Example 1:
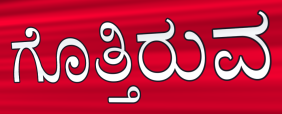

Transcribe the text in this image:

ಗೊತ್ತಿರುವ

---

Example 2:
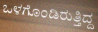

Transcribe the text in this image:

ಒಳಗೊಂಡಿರುತ್ತಿದ್ದ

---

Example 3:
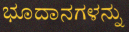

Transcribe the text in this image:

ಭೂದಾನಗಳನ್ನು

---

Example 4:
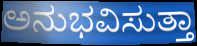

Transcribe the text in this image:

ಅನುಭವಿಸುತ್ತಾ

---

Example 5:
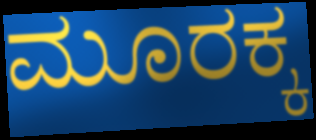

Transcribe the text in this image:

ಮೂರಕ್ಕ